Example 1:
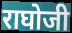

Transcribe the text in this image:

राघोजी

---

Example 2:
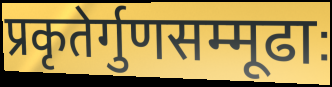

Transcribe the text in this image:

प्रकृतेर्गुणसम्मूढाः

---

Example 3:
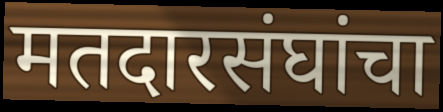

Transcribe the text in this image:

मतदारसंघांचा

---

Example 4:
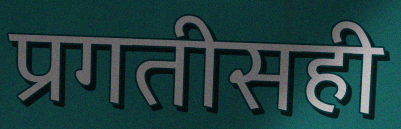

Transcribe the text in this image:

प्रगतीसही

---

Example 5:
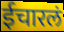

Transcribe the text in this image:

ईचारलं